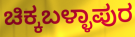
ಚಿಕ್ಕಬಳ್ಳಾಪುರ